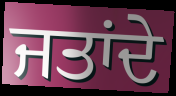
ਜਤਾਂਦੇ